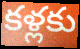
కళ్లకు